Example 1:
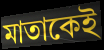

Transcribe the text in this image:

মাতাকেই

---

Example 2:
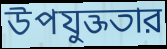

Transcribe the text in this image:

উপযুক্ততার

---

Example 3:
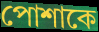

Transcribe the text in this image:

পোশাকে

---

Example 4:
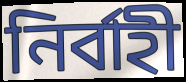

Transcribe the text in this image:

নির্বাহী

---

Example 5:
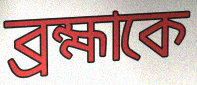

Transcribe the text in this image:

ব্রহ্মাকে